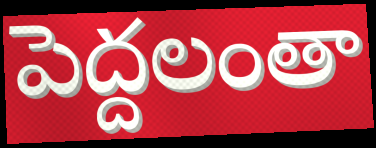
పెద్దలంతా